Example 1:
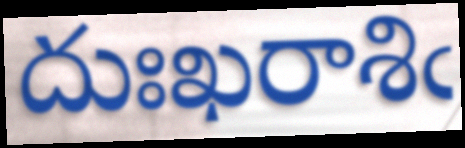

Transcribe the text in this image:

దుఃఖరాశిఁ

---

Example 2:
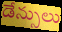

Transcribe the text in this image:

డేన్సులు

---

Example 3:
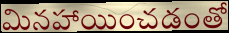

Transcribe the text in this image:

మినహాయించడంతో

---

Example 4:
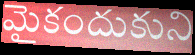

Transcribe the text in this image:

మైకందుకుని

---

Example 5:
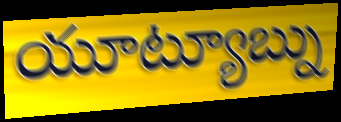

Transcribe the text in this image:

యూట్యూబ్ను